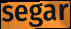
segar